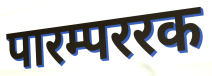
पारम्पररक